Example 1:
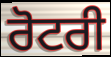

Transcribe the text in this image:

ਰੋਟਰੀ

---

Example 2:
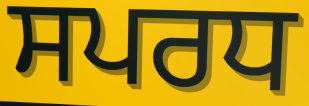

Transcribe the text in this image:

ਸਪਰਧ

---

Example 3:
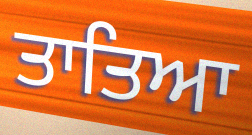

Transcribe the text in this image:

ਤਾਤਿਆ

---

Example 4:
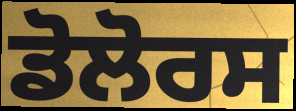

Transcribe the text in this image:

ਡੋਲੋਰਸ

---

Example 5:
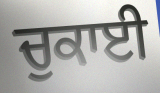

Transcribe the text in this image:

ਚੁਕਾਈ